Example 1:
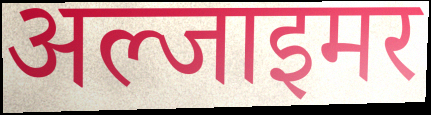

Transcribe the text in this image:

अल्जाइमर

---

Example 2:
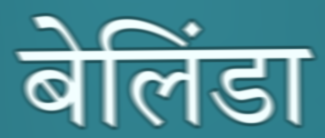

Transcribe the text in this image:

बेलिंडा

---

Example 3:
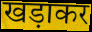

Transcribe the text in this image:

खड़ाकर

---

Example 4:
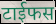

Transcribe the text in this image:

टाईफस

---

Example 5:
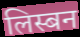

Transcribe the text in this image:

लिस्बन